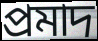
প্রমাদ